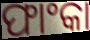
ଫାଂକା